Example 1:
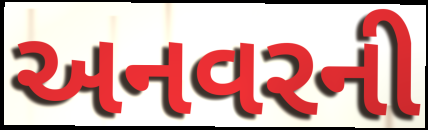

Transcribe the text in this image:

અનવરની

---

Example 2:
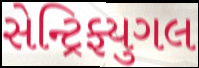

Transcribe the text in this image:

સેન્ટ્રિફ્યુગલ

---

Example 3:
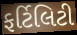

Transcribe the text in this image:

ફર્ટિલિટી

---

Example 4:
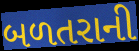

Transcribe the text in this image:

બળતરાની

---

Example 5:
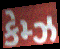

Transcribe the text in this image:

કેમ્ઝ